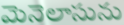
మెనెలాసును